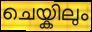
ചെയ്കിലും